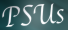
PSUs